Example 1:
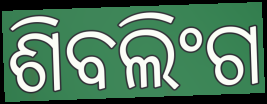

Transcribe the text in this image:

ଶିବଲିଂଗ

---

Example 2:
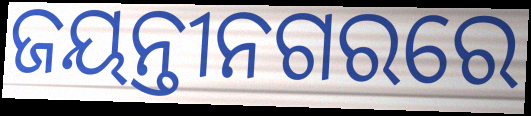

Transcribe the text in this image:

ଜୟନ୍ତୀନଗରରେ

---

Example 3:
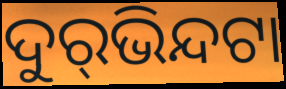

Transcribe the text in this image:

ଦୁର୍‌ଭିନ୍ଦଟା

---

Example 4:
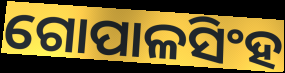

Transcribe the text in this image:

ଗୋପାଳସିଂହ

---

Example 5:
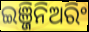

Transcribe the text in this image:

ଇଞ୍ଜିନିଅରିଂ